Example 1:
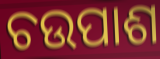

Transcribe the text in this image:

ଚଉପାଶ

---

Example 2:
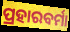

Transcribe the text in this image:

ପ୍ରହାରବର୍ମା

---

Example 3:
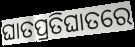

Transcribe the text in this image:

ଘାତପ୍ରତିଘାତରେ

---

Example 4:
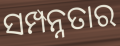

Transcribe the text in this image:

ସମ୍ପନ୍ନତାର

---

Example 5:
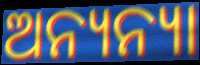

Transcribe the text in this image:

ଅନ୍ୟନ୍ୟା